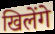
खिलेंगे